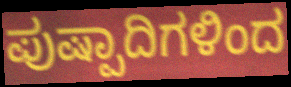
ಪುಷ್ಪಾದಿಗಳಿಂದ